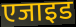
एजाइड